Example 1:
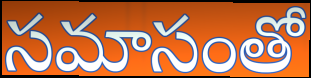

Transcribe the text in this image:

సమాసంతో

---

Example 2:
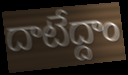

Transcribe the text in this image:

దాటేద్దాం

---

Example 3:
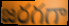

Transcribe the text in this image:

జరగగా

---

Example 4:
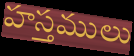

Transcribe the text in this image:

హస్తములు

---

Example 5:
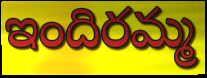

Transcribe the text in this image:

ఇందిరమ్మ